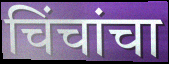
चिंचांचा